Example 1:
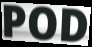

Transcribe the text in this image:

POD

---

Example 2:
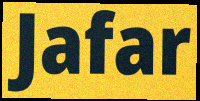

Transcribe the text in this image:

Jafar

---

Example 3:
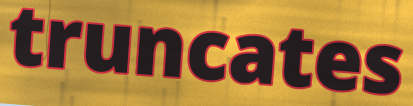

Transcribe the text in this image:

truncates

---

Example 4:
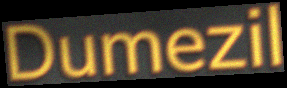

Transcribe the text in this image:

Dumezil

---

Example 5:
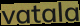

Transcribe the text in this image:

vatala